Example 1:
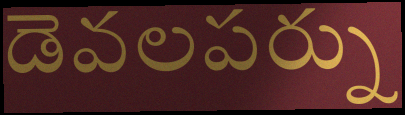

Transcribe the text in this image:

డెవలపర్ను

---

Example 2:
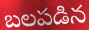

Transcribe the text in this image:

బలపడిన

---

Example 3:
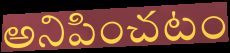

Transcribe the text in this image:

అనిపించటం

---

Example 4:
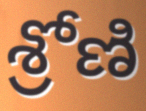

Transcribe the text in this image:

శ్రోణి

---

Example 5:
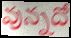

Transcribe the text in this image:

వున్నదో